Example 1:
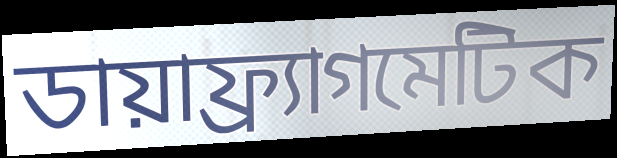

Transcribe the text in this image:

ডায়াফ্র্যাগমেটিক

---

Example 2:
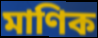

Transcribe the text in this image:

মাণিক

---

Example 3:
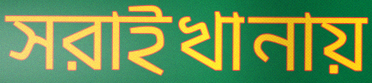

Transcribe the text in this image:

সরাইখানায়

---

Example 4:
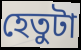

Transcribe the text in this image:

হেতুটা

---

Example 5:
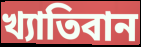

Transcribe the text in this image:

খ্যাতিবান